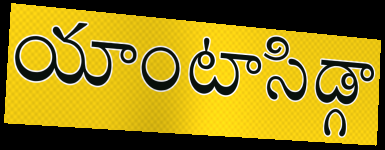
యాంటాసిడ్గా